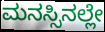
ಮನಸ್ಸಿನಲ್ಲೇ